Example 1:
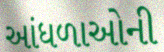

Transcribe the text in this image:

આંધળાઓની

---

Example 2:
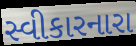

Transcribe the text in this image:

સ્વીકારનારા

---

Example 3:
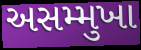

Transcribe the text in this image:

અસમ્મુખા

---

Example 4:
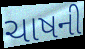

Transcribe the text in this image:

ચાષની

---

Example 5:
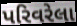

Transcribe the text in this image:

પરિવરેલા